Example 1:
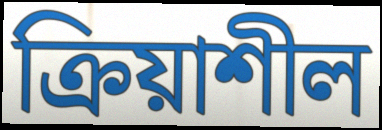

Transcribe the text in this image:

ক্রিয়াশীল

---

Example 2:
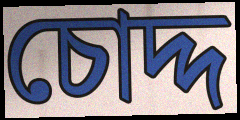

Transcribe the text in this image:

চোদ্দ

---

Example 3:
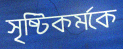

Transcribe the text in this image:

সৃষ্টিকর্মকে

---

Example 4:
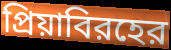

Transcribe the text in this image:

প্রিয়াবিরহের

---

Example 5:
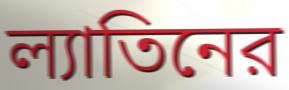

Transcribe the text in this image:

ল্যাতিনের